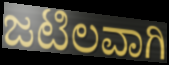
ಜಟಿಲವಾಗಿ